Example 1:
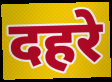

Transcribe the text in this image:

दहरे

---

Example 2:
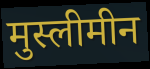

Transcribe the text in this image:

मुस्लीमीन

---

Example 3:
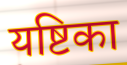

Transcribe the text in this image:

यष्टिका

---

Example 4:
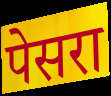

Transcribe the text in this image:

पेसरा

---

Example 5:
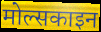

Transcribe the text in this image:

मोल्सकाइन